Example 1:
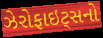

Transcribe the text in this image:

ઝેરોફાઇટ્સનો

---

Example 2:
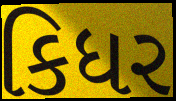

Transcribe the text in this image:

કિધર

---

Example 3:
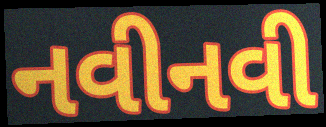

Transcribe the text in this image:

નવીનવી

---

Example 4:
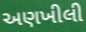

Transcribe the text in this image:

અણખીલી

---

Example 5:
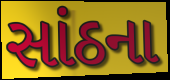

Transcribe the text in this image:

સાંઠના